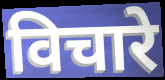
विचारे